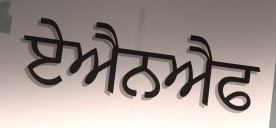
ਏਐਨਐਫ